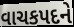
વાચકપદને